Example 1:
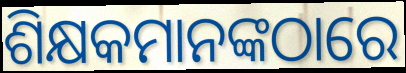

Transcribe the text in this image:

ଶିକ୍ଷକମାନଙ୍କଠାରେ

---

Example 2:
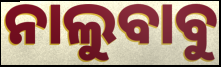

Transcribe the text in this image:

ନାଲୁବାବୁ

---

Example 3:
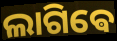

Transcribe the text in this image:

ଲାଗିଵେ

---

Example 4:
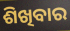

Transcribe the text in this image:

ଶିଖିବାର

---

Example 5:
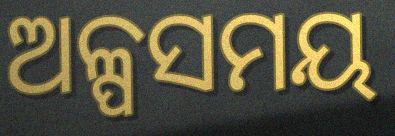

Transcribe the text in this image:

ଅଳ୍ପସମୟ